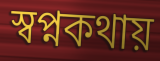
স্বপ্নকথায়